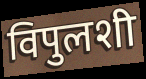
विपुलशी